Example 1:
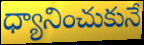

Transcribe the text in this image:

ధ్యానించుకునే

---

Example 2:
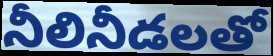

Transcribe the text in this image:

నీలినీడలతో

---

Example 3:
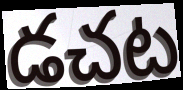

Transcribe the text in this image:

డచట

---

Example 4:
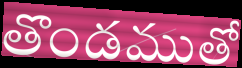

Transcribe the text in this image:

తొండముతో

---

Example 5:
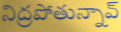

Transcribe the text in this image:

నిద్రపోతున్నావ్